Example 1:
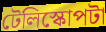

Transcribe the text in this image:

টেলিস্কোপটা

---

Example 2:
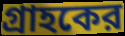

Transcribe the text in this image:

গ্রাহকের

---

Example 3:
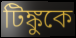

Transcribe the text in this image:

টিঙ্কুকে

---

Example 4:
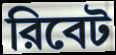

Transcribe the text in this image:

রিবেট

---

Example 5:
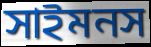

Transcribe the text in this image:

সাইমনস